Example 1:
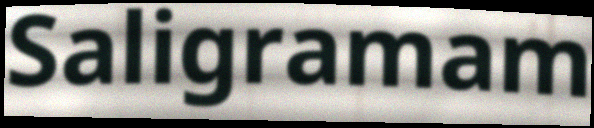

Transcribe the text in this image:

Saligramam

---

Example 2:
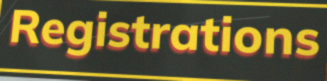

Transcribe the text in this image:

Registrations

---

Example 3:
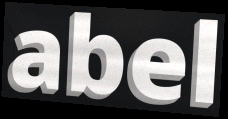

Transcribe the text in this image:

abel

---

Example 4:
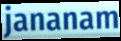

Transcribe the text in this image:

jananam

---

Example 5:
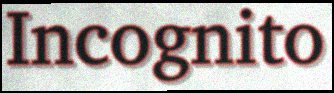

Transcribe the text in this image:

Incognito